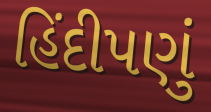
હિંદીપણું